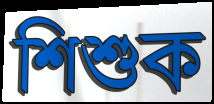
শিশুক